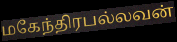
மகேந்திரபல்லவன்